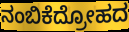
ನಂಬಿಕೆದ್ರೋಹದ